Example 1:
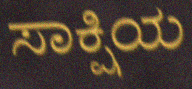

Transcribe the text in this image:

ಸಾಕ್ಷಿಯ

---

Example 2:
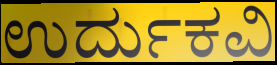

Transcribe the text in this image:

ಉರ್ದುಕವಿ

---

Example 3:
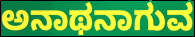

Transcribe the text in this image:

ಅನಾಥನಾಗುವ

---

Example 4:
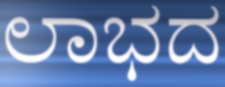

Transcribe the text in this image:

ಲಾಭದ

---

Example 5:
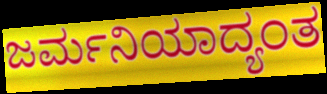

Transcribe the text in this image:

ಜರ್ಮನಿಯಾದ್ಯಂತ